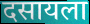
दसायला